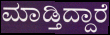
ಮಾಡ್ತಿದ್ದಾರೆ